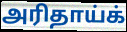
அரிதாய்க்